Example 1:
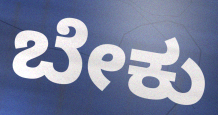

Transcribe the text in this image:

ಬೇಕು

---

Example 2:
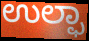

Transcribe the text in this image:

ಉಲ್ಫಾ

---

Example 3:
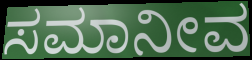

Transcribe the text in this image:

ಸಮಾನೀವ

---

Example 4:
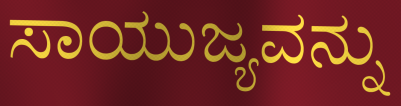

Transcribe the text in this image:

ಸಾಯುಜ್ಯವನ್ನು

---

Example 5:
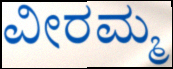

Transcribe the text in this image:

ವೀರಮ್ಮ